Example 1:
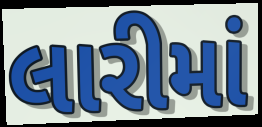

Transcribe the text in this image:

લારીમાં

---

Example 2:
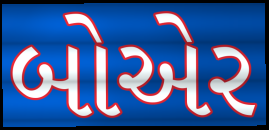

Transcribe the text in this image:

બોએર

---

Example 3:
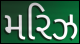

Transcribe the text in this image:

મરિઝ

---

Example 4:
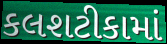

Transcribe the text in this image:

કલશટીકામાં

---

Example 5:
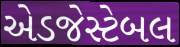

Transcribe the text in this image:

એડજેસ્ટેબલ